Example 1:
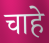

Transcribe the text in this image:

चाहे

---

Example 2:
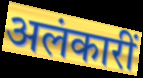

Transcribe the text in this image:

अलंकारीं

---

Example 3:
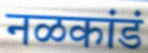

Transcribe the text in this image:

नळकांडं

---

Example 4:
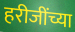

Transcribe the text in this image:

हरीजींच्या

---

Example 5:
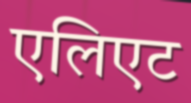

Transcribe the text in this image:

एलिएट